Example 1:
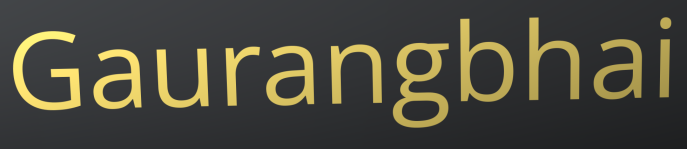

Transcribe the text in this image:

Gaurangbhai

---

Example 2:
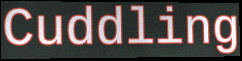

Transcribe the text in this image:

Cuddling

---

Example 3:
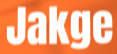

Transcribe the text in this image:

Jakge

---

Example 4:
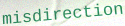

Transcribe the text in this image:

misdirection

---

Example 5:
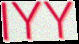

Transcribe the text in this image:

IYY